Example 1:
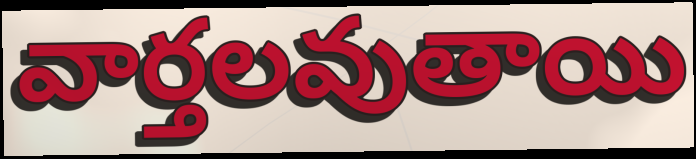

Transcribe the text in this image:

వార్తలవుతాయి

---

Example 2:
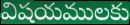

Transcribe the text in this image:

విషయములకు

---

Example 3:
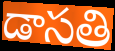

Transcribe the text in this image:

డాసతి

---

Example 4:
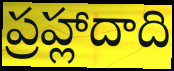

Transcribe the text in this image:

ప్రహ్లాదాది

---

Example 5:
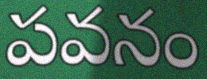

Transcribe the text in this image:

పవనం